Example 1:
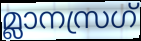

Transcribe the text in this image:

മ്ലാനസ്രഗ്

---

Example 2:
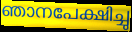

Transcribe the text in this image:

ഞാനപേക്ഷിച്ചു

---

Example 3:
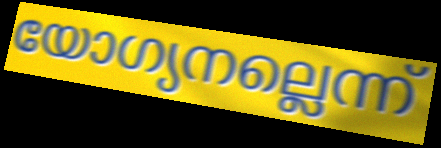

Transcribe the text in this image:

യോഗ്യനല്ലെന്ന്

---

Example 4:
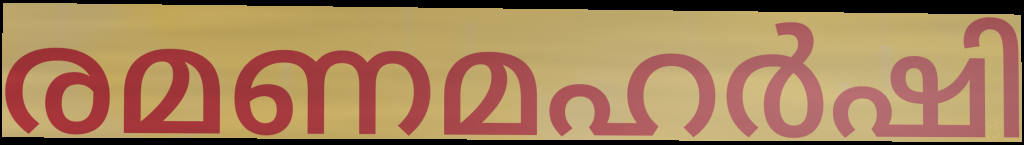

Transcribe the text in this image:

രമണമഹർഷി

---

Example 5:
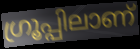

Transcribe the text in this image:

ഗ്രൂപ്പിലാണ്